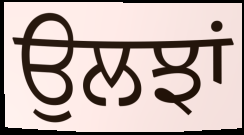
ਉਲਝਾਂ